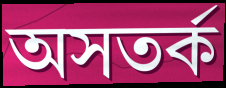
অসতর্ক